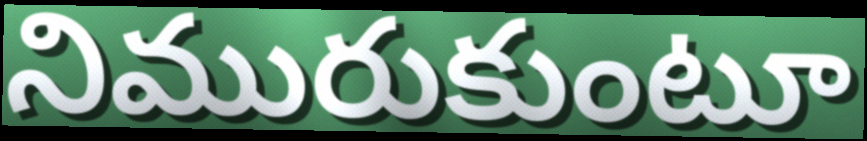
నిమురుకుంటూ